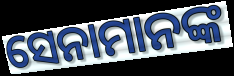
ସେନାମାନଙ୍କ